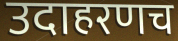
उदाहरणच